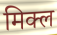
मिक्ल